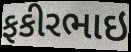
ફકીરભાઇ